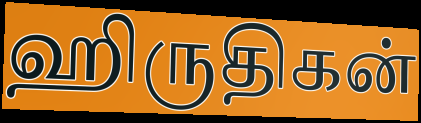
ஹிருதிகன்